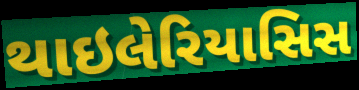
થાઇલેરિયાસિસ